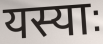
यस्याः